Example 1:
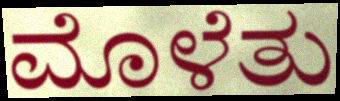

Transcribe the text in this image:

ಮೊಳೆತು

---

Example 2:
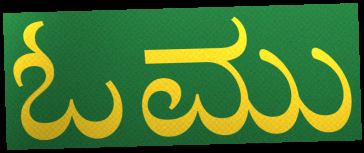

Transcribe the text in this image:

ಓಮು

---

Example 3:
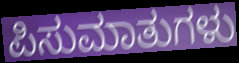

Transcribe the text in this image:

ಪಿಸುಮಾತುಗಳು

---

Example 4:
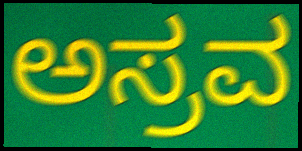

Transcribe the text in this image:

ಅಸ್ರವ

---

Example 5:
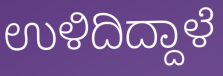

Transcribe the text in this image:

ಉಳಿದಿದ್ದಾಳೆ